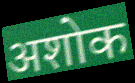
अशोक